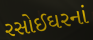
રસોઈઘરનાં